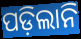
ପଡ଼ିଲାନି